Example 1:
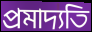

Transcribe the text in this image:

প্রমাদ্যতি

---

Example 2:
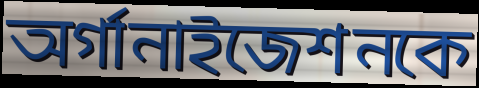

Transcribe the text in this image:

অর্গানাইজেশনকে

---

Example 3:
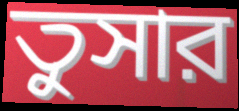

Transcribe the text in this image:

তুসার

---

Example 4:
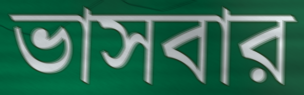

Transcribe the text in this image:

ভাসবার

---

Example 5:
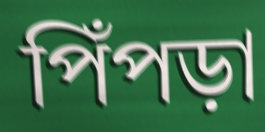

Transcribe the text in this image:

পিঁপড়া